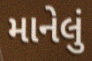
માનેલું